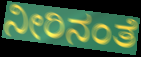
ನೀರಿನಂತೆ